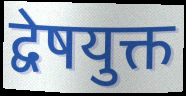
द्वेषयुक्त